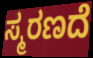
ಸ್ಮರಣದೆ